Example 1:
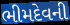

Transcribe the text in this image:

ભીમદેવની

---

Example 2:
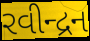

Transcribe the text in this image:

રવીન્દ્રન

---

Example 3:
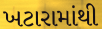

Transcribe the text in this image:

ખટારામાંથી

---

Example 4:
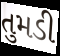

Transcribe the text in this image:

તુમડી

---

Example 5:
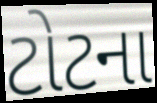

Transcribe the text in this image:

ટોટના